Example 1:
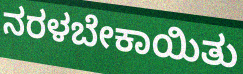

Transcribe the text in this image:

ನರಳಬೇಕಾಯಿತು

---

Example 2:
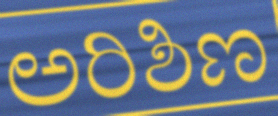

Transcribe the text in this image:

ಅರಿಶಿಣ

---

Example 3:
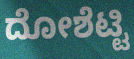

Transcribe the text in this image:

ದೋಶೆಟ್ಟಿ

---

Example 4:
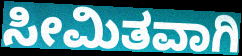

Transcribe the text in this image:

ಸೀಮಿತವಾಗಿ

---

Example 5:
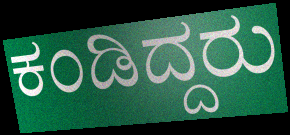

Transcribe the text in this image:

ಕಂಡಿದ್ದರು